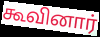
கூவினார்